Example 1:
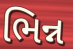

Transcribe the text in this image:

ભિન્ન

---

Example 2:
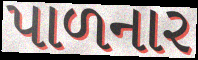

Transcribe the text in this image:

પાળનાર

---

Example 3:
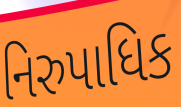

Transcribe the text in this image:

નિરુપાધિક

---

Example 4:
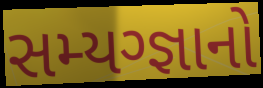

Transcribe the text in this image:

સમ્યગ્જ્ઞાનો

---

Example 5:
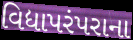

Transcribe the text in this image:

વિદ્યાપરંપરાના